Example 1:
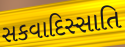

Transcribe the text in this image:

સકવાદિસ્સાતિ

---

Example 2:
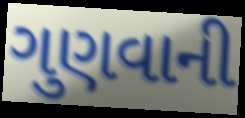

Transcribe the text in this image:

ગુણવાની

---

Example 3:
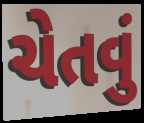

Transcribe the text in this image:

ચેતવું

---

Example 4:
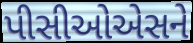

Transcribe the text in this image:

પીસીઓએસને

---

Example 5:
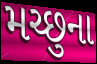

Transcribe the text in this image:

મચ્છુના